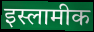
इस्लामीक